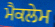
ਮੈਕਲੇਮ